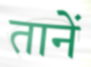
तानें